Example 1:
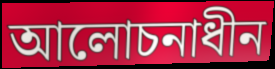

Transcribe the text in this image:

আলোচনাধীন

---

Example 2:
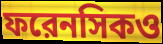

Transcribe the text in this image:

ফরেনসিকও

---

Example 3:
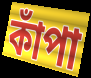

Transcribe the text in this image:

কাঁপা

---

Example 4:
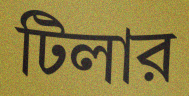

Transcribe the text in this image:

টিলার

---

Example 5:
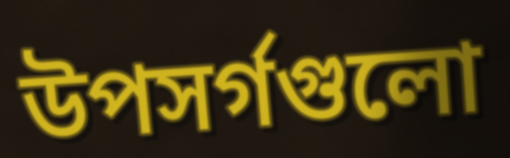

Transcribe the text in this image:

উপসর্গগুলো